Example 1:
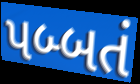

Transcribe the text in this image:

પબ્બતં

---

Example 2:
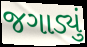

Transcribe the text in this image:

જગાડ્યું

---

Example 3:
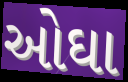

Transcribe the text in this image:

ઓઘા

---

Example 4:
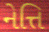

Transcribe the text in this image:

નેત્તિ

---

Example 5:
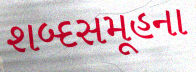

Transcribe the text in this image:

શબ્દસમૂહના